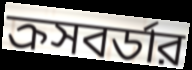
ক্রসবর্ডার